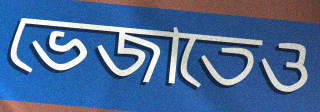
ভেজাতেও